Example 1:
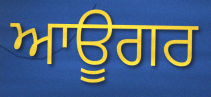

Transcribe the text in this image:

ਆਊਗਰ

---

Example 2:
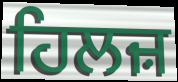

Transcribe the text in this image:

ਹਿਲਜ਼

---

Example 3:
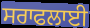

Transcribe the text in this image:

ਸਰਾਫਲਾਈ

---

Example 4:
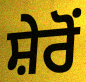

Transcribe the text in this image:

ਸ਼ੇਰੋਂ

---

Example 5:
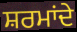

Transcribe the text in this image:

ਸ਼ਰਮਾਂਦੇ